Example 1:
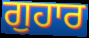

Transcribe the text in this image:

ਗੁਹਾਰ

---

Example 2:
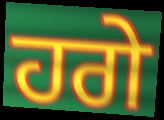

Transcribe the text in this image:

ਹਗੇ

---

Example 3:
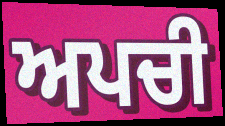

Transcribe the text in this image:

ਅਪਚੀ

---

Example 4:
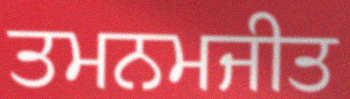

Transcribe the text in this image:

ਤਮਨਮਜੀਤ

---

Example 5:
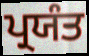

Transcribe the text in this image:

ਪ੍ਰਯੰਤ